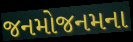
જનમોજનમના